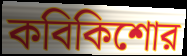
কবিকিশোর